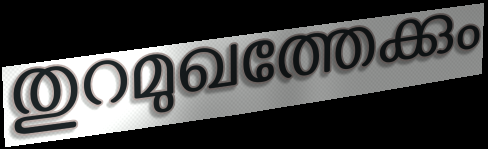
തുറമുഖത്തേക്കും